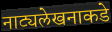
नाट्यलेखनाकडे